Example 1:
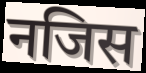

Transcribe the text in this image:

नजिस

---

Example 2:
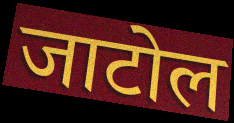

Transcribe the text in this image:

जाटोल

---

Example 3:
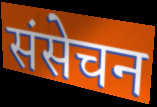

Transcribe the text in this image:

संसेचन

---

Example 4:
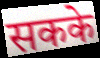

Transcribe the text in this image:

सकके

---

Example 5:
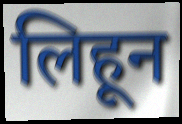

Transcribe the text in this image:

लिहून